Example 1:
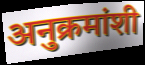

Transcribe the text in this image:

अनुक्रमांशी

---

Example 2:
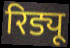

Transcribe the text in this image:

रिड्यू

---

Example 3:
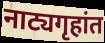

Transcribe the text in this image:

नाट्यगृहांत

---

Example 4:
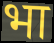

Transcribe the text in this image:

भा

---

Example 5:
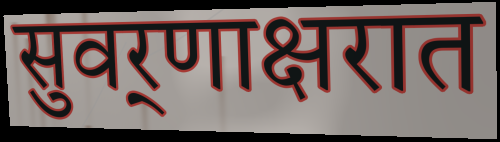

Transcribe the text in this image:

सुवर्णाक्षरात